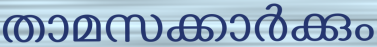
താമസക്കാർക്കും